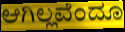
ಆಗಿಲ್ಲವೆಂದೂ